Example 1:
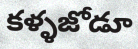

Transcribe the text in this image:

కళ్ళజోడూ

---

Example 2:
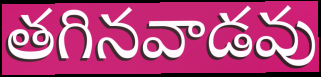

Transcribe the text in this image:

తగినవాడవు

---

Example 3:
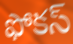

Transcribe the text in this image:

ఫోకస్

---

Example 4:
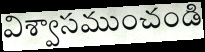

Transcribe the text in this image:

విశ్వాసముంచండి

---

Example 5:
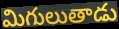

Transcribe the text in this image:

మిగులుతాడు